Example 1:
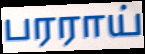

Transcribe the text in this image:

பரராய்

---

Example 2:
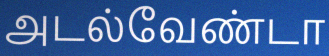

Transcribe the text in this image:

அடல்வேண்டா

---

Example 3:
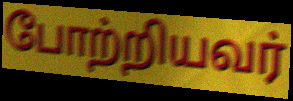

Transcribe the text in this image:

போற்றியவர்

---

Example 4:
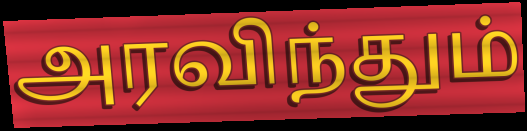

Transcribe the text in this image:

அரவிந்தும்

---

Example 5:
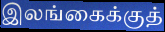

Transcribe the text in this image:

இலங்கைக்குத்